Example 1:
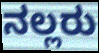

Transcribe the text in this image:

ನಲ್ಲರು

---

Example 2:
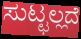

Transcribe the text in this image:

ಸುಟ್ಟಲ್ಲದೆ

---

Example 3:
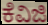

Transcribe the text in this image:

ಕೆವಿಜಿ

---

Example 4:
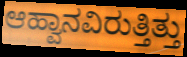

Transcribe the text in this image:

ಆಹ್ವಾನವಿರುತ್ತಿತ್ತು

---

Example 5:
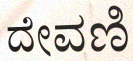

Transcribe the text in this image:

ದೇವಣಿ